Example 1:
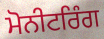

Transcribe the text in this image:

ਮੋਨੀਟਰਿੰਗ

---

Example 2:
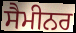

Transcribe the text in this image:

ਸੈਮੀਨਰ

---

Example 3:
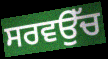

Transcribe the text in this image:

ਸਰਵਉੱਚ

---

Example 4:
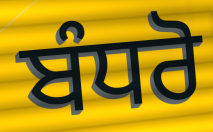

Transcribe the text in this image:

ਬੰਧਰੋ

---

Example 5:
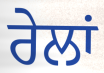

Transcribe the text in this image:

ਰੇਲਾਂ